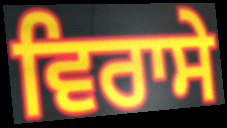
ਵਿਰਾਸੇ